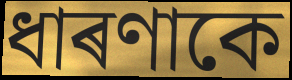
ধাৰণাকে